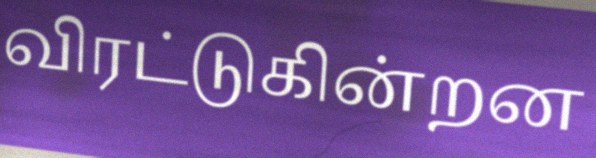
விரட்டுகின்றன